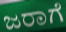
ಜರಾಗೆ